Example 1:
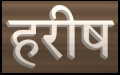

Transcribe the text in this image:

हरीष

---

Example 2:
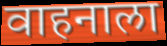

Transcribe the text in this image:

वाहनाला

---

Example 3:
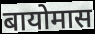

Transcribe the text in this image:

बायोमास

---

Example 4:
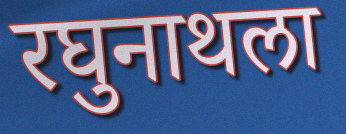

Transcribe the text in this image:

रघुनाथला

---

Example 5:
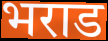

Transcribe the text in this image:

भराड